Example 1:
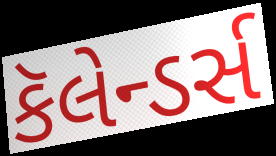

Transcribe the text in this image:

કૅલેન્ડર્સ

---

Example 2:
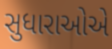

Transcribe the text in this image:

સુધારાઓએ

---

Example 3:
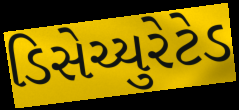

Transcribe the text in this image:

ડિસેચ્યુરેટેડ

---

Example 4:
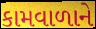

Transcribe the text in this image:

કામવાળાને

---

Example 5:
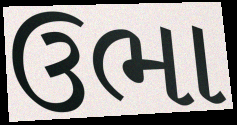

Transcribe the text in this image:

ઉભા